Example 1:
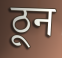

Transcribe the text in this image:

ठून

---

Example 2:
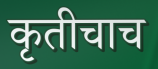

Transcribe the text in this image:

कृतीचाच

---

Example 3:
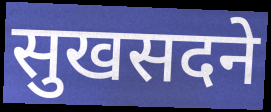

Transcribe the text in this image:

सुखसदने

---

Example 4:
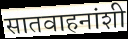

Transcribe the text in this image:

सातवाहनांशी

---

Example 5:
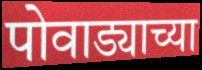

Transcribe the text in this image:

पोवाड्याच्या